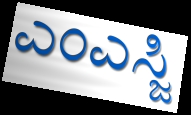
ಎಂಎಸ್ಜಿ